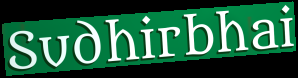
Sudhirbhai